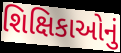
શિક્ષિકાઓનું